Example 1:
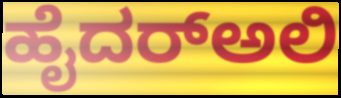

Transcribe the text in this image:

ಹೈದರ್‌ಅಲಿ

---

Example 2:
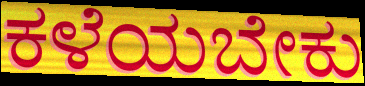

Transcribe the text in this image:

ಕಳೆಯಬೇಕು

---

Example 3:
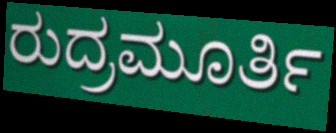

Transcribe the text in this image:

ರುದ್ರಮೂರ್ತಿ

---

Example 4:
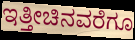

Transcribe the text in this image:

ಇತ್ತೀಚಿನವರೆಗೂ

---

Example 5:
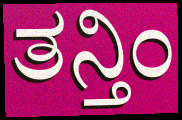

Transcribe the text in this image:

ತನ್ತಿಂ